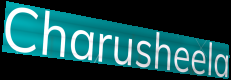
Charusheela